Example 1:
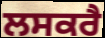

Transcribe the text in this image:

ਲਸਕਰੈ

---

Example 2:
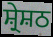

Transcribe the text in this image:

ਸ਼੍ਰੇਸ਼ਠ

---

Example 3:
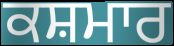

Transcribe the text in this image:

ਕਸ਼ਮਾਰ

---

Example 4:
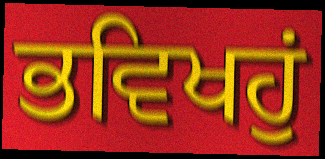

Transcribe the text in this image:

ਭਵਿਖਹੁਂ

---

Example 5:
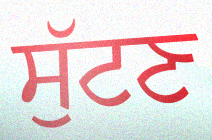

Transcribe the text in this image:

ਸੁੱਟਣ